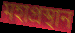
মহাপ্রস্থান